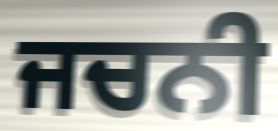
ਜਚਨੀ